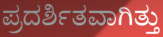
ಪ್ರದರ್ಶಿತವಾಗಿತ್ತು